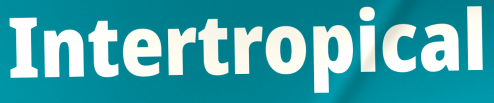
Intertropical